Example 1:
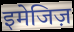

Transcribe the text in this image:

इमेजिज़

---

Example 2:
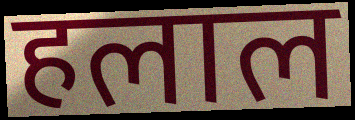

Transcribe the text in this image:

हलाल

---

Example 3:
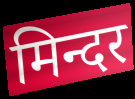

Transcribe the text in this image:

मिन्दर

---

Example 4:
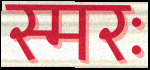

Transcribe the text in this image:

स्मरः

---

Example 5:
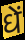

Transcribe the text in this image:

धें